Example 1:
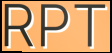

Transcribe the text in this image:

RPT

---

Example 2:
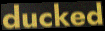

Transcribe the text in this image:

ducked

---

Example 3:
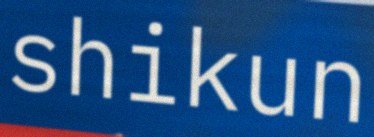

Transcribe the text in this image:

shikun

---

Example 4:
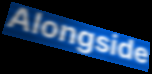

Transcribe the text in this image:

Alongside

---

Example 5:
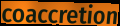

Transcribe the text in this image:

coaccretion